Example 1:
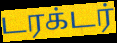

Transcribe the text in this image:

டரக்டர்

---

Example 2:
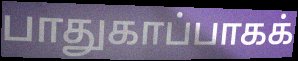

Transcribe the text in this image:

பாதுகாப்பாகக்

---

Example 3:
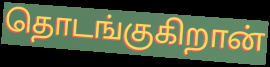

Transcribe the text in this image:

தொடங்குகிறான்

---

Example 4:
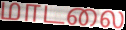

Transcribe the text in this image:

மாடலை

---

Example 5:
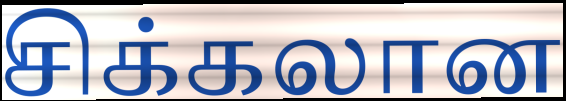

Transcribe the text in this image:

சிக்கலான